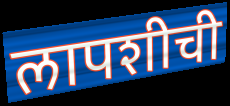
लापशीची